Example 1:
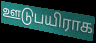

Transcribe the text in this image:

ஊடுபயிராக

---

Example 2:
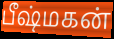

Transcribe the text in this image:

பீஷ்மகன்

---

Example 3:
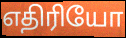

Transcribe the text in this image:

எதிரியோ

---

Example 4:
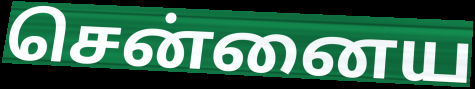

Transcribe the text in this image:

சென்னைய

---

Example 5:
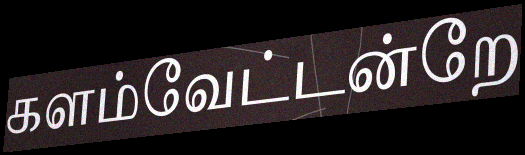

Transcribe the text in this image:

களம்வேட்டன்றே